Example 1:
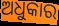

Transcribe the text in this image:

ଅଧୁକାର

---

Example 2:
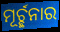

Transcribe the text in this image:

ମୂର୍ଚ୍ଛନାର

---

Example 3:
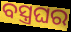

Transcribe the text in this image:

ବସ୍ତ୍ରଘର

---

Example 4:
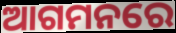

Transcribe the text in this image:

ଆଗମନରେ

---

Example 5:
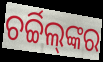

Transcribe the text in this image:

ଚର୍ଚ୍ଚିଲ୍‌ଙ୍କର